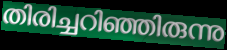
തിരിച്ചറിഞ്ഞിരുന്നു